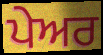
ਪੇਅਰ